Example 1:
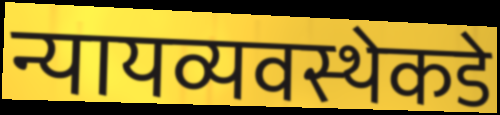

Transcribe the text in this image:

न्यायव्यवस्थेकडे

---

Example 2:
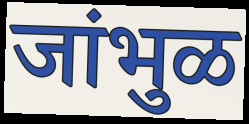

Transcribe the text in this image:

जांभुळ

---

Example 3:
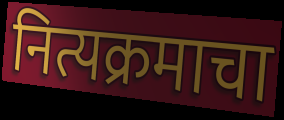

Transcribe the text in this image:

नित्यक्रमाचा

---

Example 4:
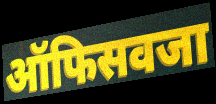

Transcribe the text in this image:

ऑफिसवजा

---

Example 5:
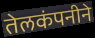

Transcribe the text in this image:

तेलकंपनीने